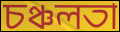
চঞ্চলতা